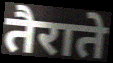
तैराते